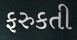
ફરુકતી